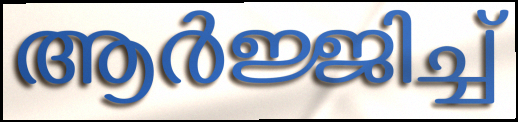
ആർജ്ജിച്ച്